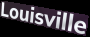
Louisville